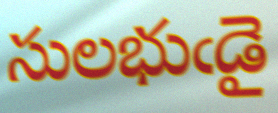
సులభుఁడై